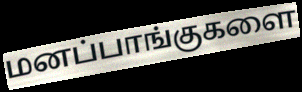
மனப்பாங்குகளை